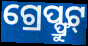
ଗ୍ରେପ୍ଫ୍ରୁଟ୍